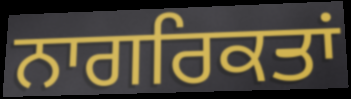
ਨਾਗਰਿਕਤਾਂ